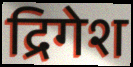
द्रिगेश